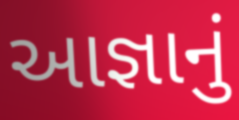
આજ્ઞાનું